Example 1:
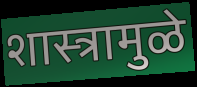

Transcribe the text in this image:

शास्त्रामुळे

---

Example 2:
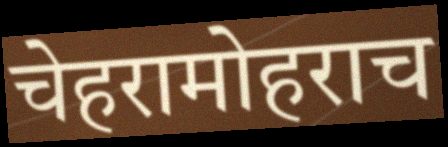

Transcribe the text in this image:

चेहरामोहराच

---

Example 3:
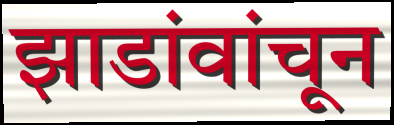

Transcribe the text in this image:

झाडांवांचून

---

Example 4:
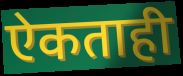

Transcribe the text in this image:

ऐकताही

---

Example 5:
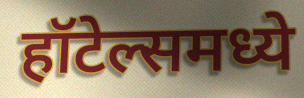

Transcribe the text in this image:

हॉटेल्समध्ये